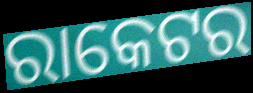
ରାକେଟର